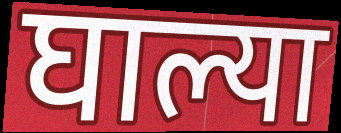
घाल्या